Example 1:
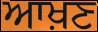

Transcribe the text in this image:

ਆਖ਼ਣ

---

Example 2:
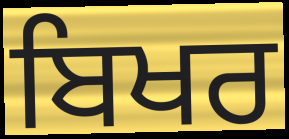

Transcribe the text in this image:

ਬਿਖਰ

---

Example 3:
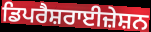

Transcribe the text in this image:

ਡਿਪਰੈਸ਼ਰਾਈਜ਼ੇਸ਼ਨ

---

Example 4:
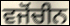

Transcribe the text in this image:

ਵਜੋਂਚੀਨ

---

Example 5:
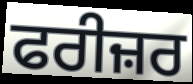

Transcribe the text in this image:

ਫਰੀਜ਼ਰ